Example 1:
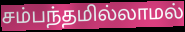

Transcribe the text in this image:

சம்பந்தமில்லாமல்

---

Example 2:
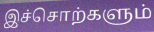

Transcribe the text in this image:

இச்சொற்களும்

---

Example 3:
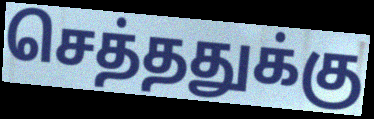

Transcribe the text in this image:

செத்ததுக்கு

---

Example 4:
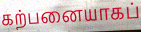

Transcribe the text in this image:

கற்பனையாகப்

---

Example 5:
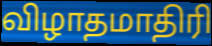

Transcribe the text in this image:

விழாதமாதிரி